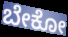
ಬೇಕೋ